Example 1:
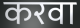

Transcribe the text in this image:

करवा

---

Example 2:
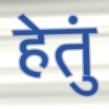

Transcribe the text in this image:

हेतुं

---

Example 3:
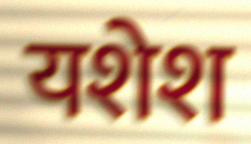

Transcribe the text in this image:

यशेश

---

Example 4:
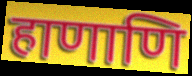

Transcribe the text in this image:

हाणाणि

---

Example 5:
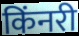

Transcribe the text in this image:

किंनरी